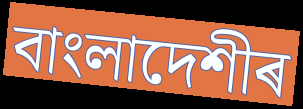
বাংলাদেশীৰ